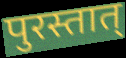
पुरस्तात्